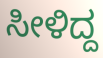
ಸೀಳಿದ್ದ